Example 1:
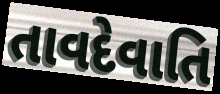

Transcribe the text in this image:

તાવદેવાતિ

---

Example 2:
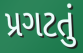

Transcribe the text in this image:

પ્રગટતું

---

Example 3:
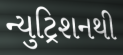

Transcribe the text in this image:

ન્યુટ્રિશનથી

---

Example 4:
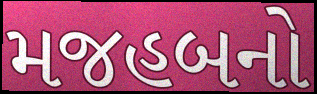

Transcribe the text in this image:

મજહબનો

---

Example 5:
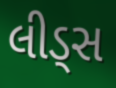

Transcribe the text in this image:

લીડ્સ